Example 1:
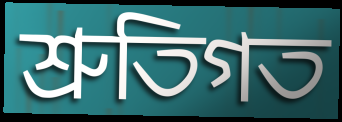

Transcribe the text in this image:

শ্রুতিগত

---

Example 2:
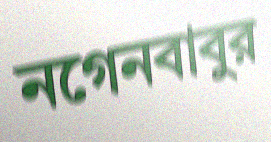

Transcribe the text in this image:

নগেনবাবুর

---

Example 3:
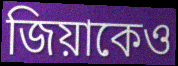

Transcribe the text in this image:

জিয়াকেও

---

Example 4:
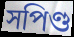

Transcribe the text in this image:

সপিণ্ড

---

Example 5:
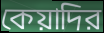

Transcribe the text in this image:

কেয়াদির